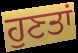
ਹੁਣਤਾਂ